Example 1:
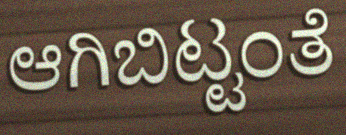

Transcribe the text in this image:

ಆಗಿಬಿಟ್ಟಂತೆ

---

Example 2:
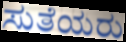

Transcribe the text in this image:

ಸುತೆಯರು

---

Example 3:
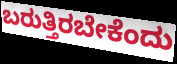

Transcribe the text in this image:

ಬರುತ್ತಿರಬೇಕೆಂದು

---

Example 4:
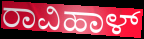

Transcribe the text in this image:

ರಾವಿಹಾಳ್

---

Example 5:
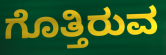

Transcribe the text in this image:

ಗೊತ್ತಿರುವ